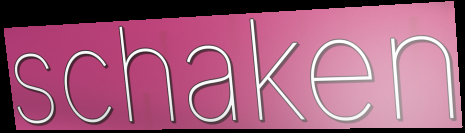
schaken